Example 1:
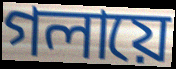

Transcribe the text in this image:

গলায়ে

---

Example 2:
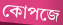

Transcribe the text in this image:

কোপজে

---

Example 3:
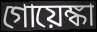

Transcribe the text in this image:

গোয়েঙ্কা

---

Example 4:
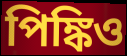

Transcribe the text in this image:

পিঙ্কিও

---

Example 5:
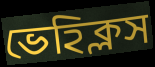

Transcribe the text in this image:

ভেহিক্লস